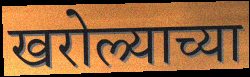
खरोल्याच्या